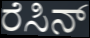
ರೆಸಿನ್